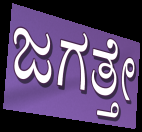
ಜಗತ್ತೇ